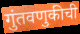
गुंतवणुकीची